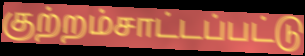
குற்றம்சாட்டப்பட்டு